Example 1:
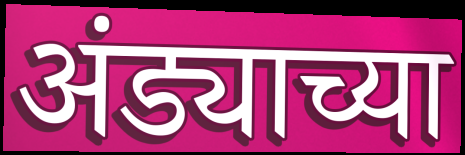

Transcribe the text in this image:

अंड्याच्या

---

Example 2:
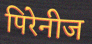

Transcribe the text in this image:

पिरेनीज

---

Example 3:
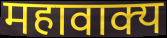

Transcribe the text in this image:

महावाक्य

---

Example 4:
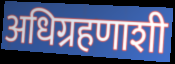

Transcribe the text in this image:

अधिग्रहणाशी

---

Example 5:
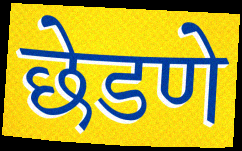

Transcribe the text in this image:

छेडणे